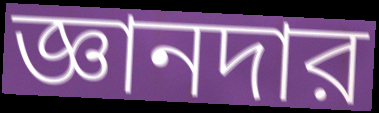
জ্ঞানদার